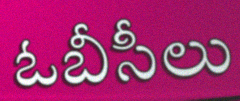
ఓబీసీలు